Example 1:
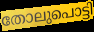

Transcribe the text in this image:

തോലുപൊട്ടി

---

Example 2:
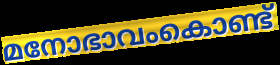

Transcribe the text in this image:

മനോഭാവംകൊണ്ട്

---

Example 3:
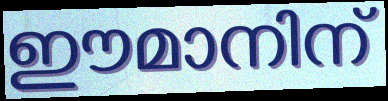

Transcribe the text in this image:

ഈമാനിന്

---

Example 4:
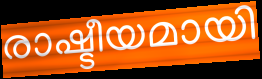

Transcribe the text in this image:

രാഷ്ടീയമായി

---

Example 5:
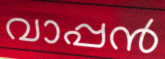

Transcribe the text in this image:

വാപ്പൻ